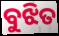
ବୁଝିତ